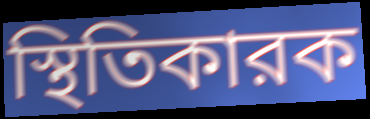
স্থিতিকারক